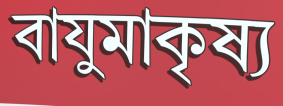
বাযুমাকৃষ্য